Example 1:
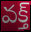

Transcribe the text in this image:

వక్త్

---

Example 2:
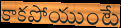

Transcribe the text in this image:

కాకపోయుంటే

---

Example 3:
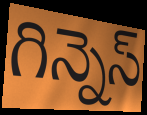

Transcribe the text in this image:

గిన్నెస్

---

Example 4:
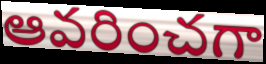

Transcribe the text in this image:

ఆవరించగా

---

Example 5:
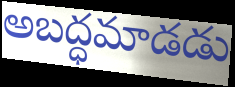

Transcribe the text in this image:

అబద్ధమాడడు